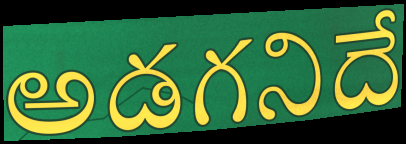
అడగనిదే